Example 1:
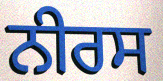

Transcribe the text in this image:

ਨੀਰਸ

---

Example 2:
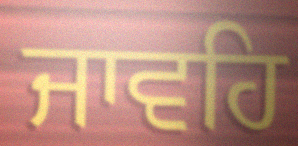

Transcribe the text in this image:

ਜਾਵਹਿ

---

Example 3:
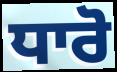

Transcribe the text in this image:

ਧਾਰੋ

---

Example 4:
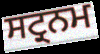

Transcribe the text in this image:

ਸਟ੍ਰਨਮ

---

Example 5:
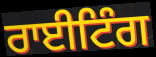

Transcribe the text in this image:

ਰਾਈਟਿੰਗ